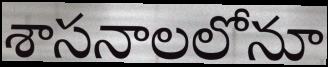
శాసనాలలోనూ